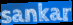
sankar